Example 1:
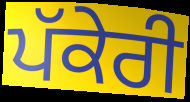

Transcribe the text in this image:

ਪੱਕੇਰੀ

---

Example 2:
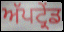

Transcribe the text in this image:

ਅੱਪਟ੍ਰੇਂਡ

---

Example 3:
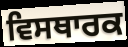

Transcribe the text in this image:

ਵਿਸਥਾਰਕ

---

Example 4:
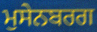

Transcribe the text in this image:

ਮੁਸੇਨਬਰਗ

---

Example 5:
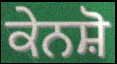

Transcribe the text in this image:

ਕੇਨਸ਼ੋ